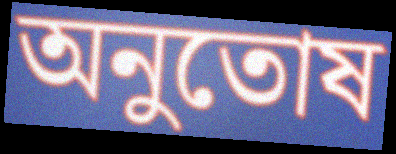
অনুতোষ